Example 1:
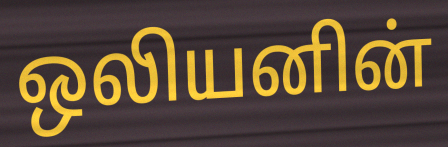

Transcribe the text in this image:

ஒலியனின்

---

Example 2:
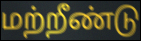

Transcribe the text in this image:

மற்றீண்டு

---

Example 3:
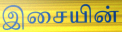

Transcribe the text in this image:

இசையின்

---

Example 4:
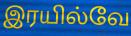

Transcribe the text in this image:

இரயில்வே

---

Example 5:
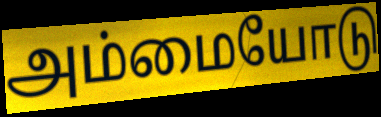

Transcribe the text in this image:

அம்மையோடு